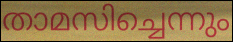
താമസിച്ചെന്നും